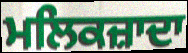
ਮਲਿਕਜ਼ਾਦਾ